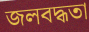
জলবদ্ধতা